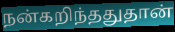
நன்கறிந்ததுதான்